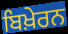
ਬਿਖ਼ੇਰਨ